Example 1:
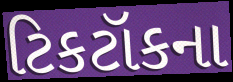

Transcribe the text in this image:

ટિકટૉકના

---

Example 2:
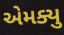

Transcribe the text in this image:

એમક્યુ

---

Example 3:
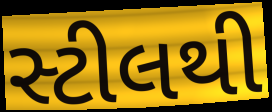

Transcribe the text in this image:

સ્ટીલથી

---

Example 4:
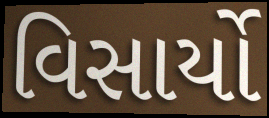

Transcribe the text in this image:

વિસાર્યો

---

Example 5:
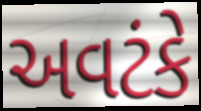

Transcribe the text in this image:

અવટંકે